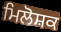
ਮਿਲੋਸ਼ਕ